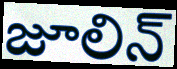
జూలిన్